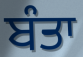
ਬੰਤਾ